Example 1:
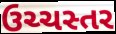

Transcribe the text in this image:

ઉચ્ચસ્તર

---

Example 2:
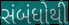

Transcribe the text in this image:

સંબંધોથી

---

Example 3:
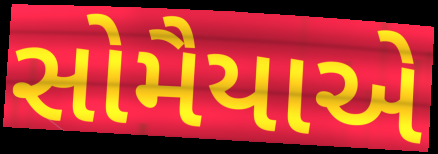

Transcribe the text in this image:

સોમૈયાએ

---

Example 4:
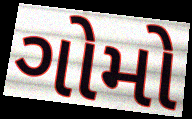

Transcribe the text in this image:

ગોમો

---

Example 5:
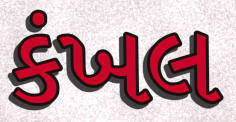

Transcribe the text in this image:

કંખલ